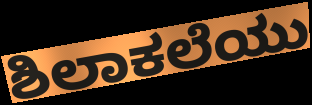
ಶಿಲಾಕಲೆಯು